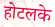
होटलके